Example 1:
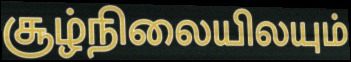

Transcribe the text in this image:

சூழ்நிலையிலயும்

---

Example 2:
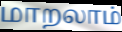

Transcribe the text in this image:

மாறலாம்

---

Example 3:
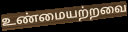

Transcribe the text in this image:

உண்மையற்றவை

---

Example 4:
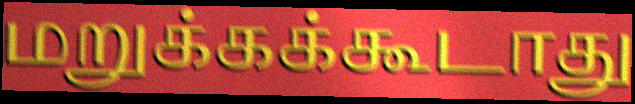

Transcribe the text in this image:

மறுக்கக்கூடாது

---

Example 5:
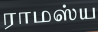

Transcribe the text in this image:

ராமஸ்ய